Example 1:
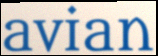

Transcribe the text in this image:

avian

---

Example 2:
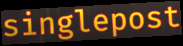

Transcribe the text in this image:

singlepost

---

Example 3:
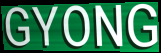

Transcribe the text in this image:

GYONG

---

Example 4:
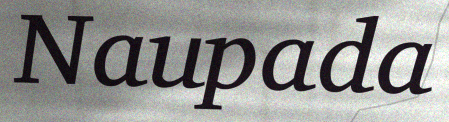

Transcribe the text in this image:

Naupada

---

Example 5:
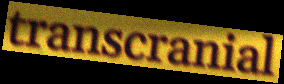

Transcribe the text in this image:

transcranial